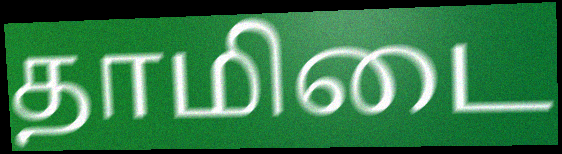
தாமிடை